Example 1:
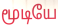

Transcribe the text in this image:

மூடியே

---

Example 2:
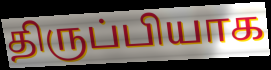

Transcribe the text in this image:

திருப்பியாக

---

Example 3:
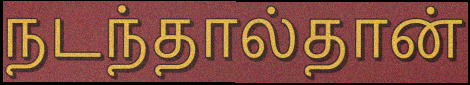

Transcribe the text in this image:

நடந்தால்தான்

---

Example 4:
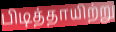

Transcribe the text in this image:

பிடித்தாயிற்று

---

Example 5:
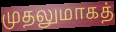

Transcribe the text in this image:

முதலுமாகத்